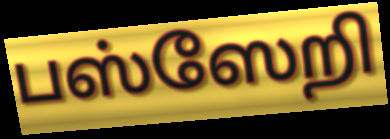
பஸ்ஸேறி